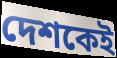
দেশকেই